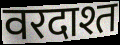
वरदाश्त